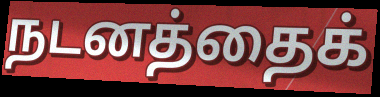
நடனத்தைக்